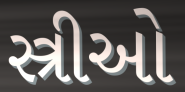
સ્ત્રીઓ